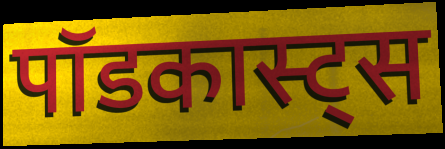
पॉडकास्ट्स